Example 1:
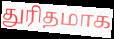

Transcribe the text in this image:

துரிதமாக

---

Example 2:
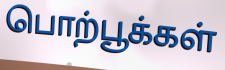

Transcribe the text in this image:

பொற்பூக்கள்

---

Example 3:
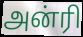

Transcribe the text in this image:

அன்ரி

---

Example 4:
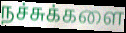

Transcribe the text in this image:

நச்சுக்களை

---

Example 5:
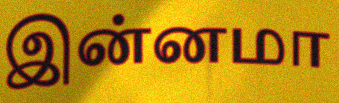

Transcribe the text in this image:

இன்னமா